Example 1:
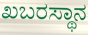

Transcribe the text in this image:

ಖಬರಸ್ಥಾನ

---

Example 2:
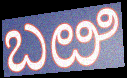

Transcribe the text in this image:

ಬೞಿ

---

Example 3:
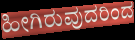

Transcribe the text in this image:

ಹೀಗಿರುವುದರಿಂದ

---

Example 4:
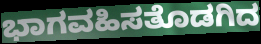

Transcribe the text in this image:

ಭಾಗವಹಿಸತೊಡಗಿದ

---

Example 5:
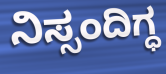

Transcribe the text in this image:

ನಿಸ್ಸಂದಿಗ್ಧ